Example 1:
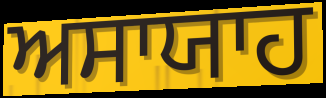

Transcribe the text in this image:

ਅਸਾਯਾਹ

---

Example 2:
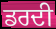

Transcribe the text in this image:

ਡਰਦੀ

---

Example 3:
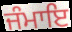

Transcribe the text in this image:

ਜੰਮਾਇ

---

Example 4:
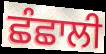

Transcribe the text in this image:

ਛੰਛਾਲੀ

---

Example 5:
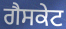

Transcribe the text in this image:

ਗੈਸਕੇਟ